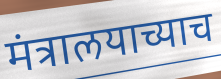
मंत्रालयाच्याच